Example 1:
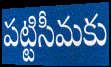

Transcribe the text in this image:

పట్టిసీమకు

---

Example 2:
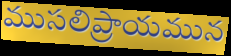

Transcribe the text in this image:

ముసలిప్రాయమున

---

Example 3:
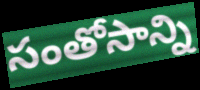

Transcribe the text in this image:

సంతోసాన్ని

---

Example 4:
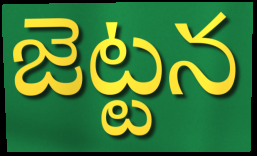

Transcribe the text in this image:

జెట్టన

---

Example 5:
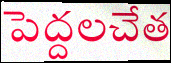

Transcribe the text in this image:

పెద్దలచేత